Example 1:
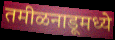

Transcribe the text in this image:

तमीळनाडूमध्ये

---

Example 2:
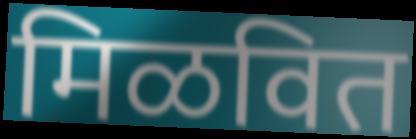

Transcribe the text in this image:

मिळवित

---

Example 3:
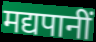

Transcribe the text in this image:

मद्यपानीं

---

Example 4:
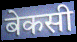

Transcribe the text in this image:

बेकसी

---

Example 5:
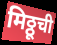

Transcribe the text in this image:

मिठ्ठूची